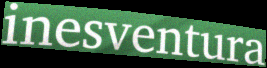
inesventura